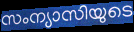
സംന്യാസിയുടെ